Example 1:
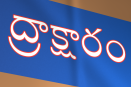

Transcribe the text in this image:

ద్రాక్షారం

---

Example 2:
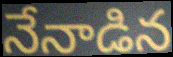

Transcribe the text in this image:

నేనాడిన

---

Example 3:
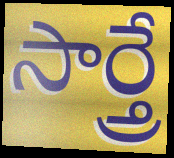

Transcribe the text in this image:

సార్త్రే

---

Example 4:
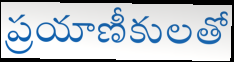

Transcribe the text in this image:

ప్రయాణీకులతో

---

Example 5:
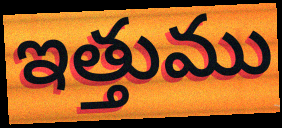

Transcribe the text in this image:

ఇత్తుము